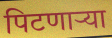
पिटणाऱ्या